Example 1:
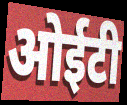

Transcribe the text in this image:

ओईटी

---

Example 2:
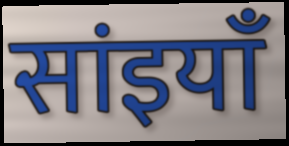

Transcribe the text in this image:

सांइयाँ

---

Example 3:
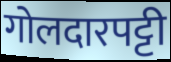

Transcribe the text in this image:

गोलदारपट्टी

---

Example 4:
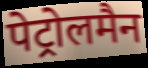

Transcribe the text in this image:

पेट्रोलमैन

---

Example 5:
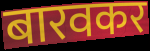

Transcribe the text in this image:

बारवकर